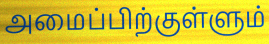
அமைப்பிற்குள்ளும்